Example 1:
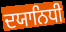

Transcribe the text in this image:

ਦਯਾਨਿਧੀ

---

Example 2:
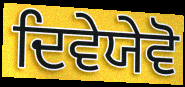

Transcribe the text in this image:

ਦਿਵੇਯੇਵੋ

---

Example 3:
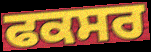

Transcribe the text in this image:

ਫਕਸਰ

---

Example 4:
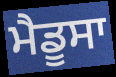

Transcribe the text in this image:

ਮੈਡੂਸਾ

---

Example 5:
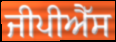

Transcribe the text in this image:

ਜੀਪੀਐੱਸ